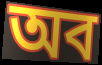
অব